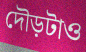
দৌড়টাও